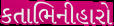
કતાભિનીહારો